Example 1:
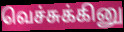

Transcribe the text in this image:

வெச்சுக்கினு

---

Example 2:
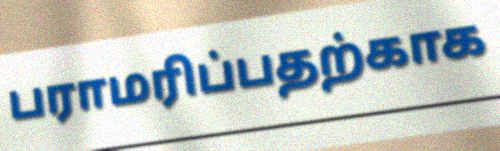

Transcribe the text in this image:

பராமரிப்பதற்காக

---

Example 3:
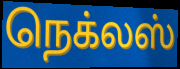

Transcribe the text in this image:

நெக்லஸ்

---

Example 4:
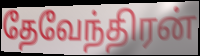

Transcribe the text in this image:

தேவேந்திரன்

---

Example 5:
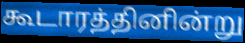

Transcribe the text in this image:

கூடாரத்தினின்று